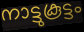
നാട്ടുകൂട്ടം